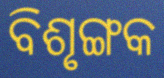
ବିଶୃଙ୍ଗକ